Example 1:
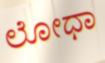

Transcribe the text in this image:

ಲೋಧಾ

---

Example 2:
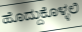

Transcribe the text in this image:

ಹೊದ್ದುಕೊಳ್ಳಲಿ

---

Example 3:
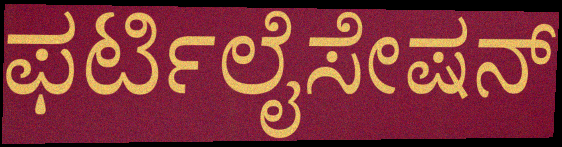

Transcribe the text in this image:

ಫರ್ಟಿಲೈಸೇಷನ್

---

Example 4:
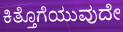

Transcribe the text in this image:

ಕಿತ್ತೊಗೆಯುವುದೇ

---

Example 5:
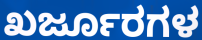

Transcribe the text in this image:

ಖರ್ಜೂರಗಳ